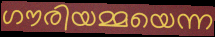
ഗൗരിയമ്മയെന്ന